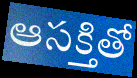
ఆసక్తితో